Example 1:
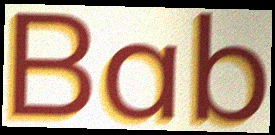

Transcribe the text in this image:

Bab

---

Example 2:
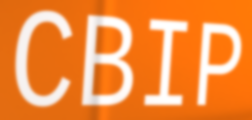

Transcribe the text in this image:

CBIP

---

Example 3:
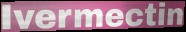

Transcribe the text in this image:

Ivermectin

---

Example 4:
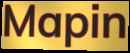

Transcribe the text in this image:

Mapin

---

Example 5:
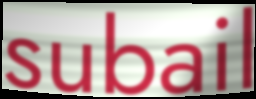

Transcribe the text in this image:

subail